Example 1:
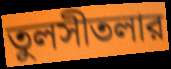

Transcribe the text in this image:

তুলসীতলার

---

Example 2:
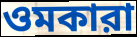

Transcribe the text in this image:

ওমকারা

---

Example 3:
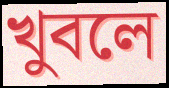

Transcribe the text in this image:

খুবলে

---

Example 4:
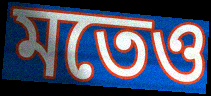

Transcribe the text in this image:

মতেও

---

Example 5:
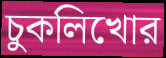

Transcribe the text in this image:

চুকলিখোর